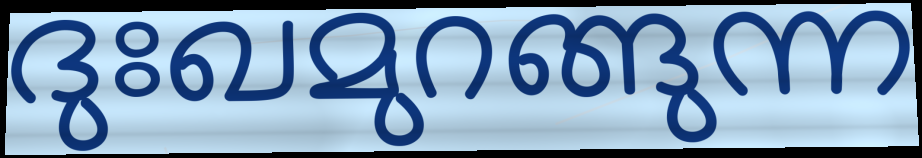
ദുഃഖമുറങ്ങുന്ന